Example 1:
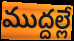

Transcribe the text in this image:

ముద్దల్లే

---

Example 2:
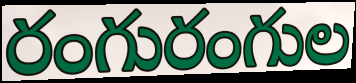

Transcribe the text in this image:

రంగురంగుల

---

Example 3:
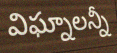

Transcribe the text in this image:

విఘ్నాలన్నీ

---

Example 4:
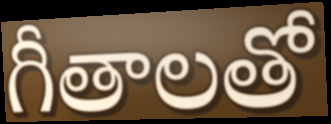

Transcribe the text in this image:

గీతాలతో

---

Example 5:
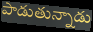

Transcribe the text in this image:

పాడుతున్నాడు